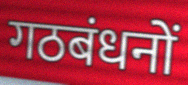
गठबंधनों